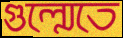
গুল্মেতে